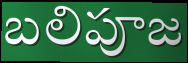
బలిపూజ